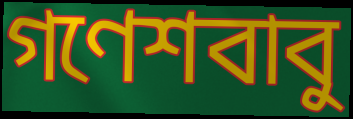
গণেশবাবু